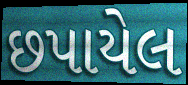
છપાયેલ